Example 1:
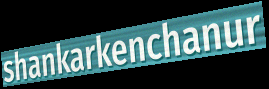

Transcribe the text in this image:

shankarkenchanur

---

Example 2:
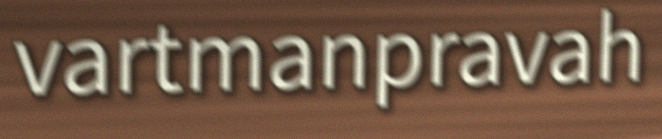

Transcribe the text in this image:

vartmanpravah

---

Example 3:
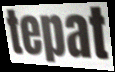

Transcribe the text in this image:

tepat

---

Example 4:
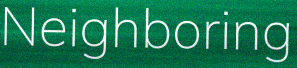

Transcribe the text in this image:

Neighboring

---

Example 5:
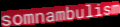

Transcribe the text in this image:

somnambulism